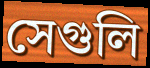
সেগুলি